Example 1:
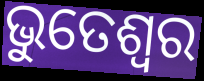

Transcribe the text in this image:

ଭୁତେଶ୍ୱର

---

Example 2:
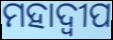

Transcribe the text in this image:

ମହାଦ୍ୱୀପ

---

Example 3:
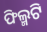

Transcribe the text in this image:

ଫିଲ୍ମଟି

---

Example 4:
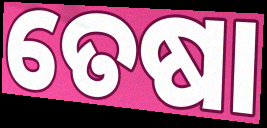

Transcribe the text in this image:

ତେଷା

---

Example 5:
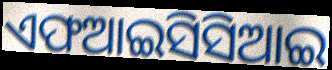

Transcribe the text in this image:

ଏଫଆଇସିସିଆଇ